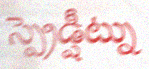
స్ప్రెడ్షీట్ను